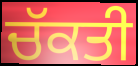
ਚੱਕਤੀ